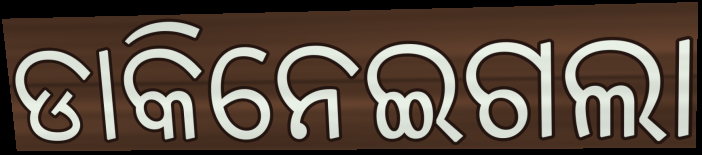
ଡାକିନେଇଗଲା